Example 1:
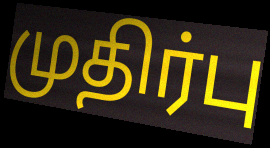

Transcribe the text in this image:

முதிர்பு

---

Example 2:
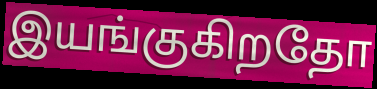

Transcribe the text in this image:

இயங்குகிறதோ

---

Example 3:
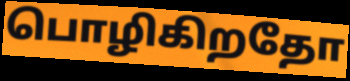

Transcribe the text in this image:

பொழிகிறதோ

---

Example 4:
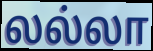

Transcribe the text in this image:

லல்லா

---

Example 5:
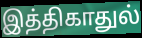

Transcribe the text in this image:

இத்திகாதுல்